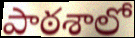
పాఠశాలో